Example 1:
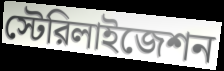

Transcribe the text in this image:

স্টেরিলাইজেশন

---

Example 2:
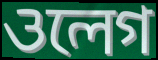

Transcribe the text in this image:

ওলেগ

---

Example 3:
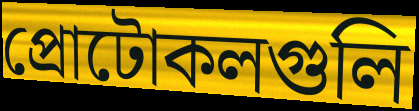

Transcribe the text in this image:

প্রোটোকলগুলি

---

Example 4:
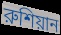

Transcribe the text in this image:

রুশিয়ান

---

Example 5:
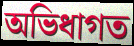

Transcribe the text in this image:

অভিধাগত